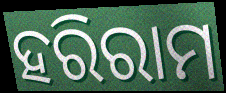
ହରିରାମ